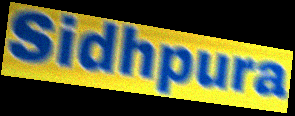
Sidhpura